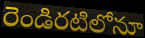
రెండిరటిలోనూ